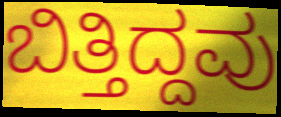
ಬಿತ್ತಿದ್ದವು